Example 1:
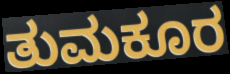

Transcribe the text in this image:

ತುಮಕೂರ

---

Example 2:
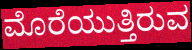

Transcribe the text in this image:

ಮೊರೆಯುತ್ತಿರುವ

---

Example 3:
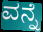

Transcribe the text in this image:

ವನ್ನೆ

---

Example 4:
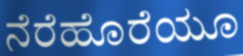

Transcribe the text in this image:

ನೆರೆಹೊರೆಯೂ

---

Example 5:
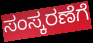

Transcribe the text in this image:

ಸಂಸ್ಕರಣೆಗೆ